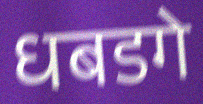
धबडगे